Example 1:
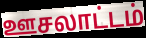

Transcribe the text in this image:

ஊசலாட்டம்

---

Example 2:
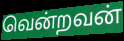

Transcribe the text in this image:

வென்றவன்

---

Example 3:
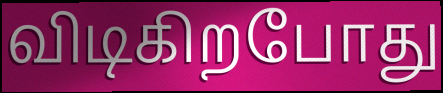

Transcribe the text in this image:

விடிகிறபோது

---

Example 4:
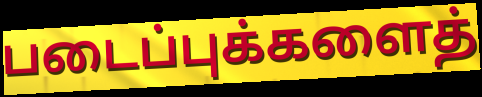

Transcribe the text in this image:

படைப்புக்களைத்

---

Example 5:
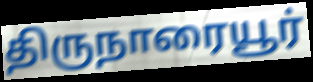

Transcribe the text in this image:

திருநாரையூர்